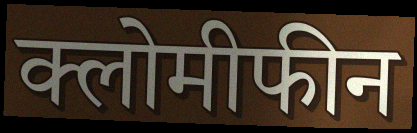
क्लोमीफीन